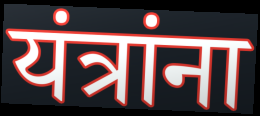
यंत्रांना